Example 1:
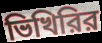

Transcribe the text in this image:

ভিখিরির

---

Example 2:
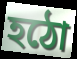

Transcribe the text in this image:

হঠো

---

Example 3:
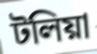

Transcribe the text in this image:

টলিয়া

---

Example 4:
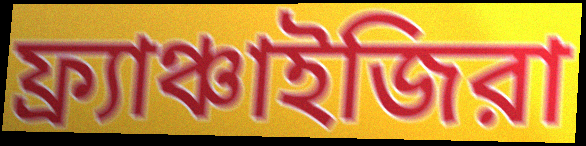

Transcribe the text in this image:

ফ্র্যাঞ্চাইজিরা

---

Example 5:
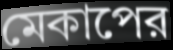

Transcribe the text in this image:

মেকাপের